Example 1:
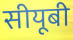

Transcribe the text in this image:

सीयूबी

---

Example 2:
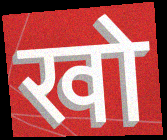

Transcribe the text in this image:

खो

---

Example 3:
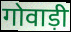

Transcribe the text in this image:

गोवाड़ी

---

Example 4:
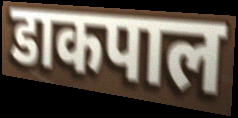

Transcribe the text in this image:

डाकपाल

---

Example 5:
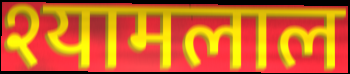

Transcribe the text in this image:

श्यामलाल